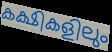
കക്ഷികളിലും